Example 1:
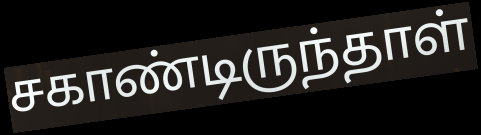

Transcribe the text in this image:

சகாண்டிருந்தாள்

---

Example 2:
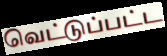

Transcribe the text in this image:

வெட்டுப்பட்ட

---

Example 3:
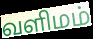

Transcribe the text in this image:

வளிமம்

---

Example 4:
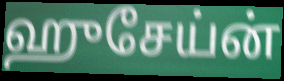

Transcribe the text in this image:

ஹுசேய்ன்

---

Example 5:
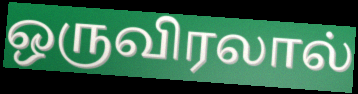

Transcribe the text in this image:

ஒருவிரலால்